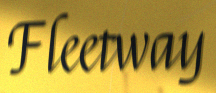
Fleetway